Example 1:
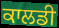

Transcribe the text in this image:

ਕਾਲਡੀ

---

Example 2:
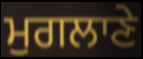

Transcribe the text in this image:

ਮੁਗਲਾਣੇ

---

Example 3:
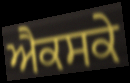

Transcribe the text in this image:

ਐਕਸਕੇ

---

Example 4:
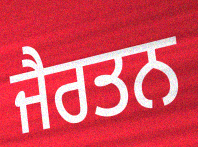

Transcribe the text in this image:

ਜੈਰਤਨ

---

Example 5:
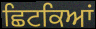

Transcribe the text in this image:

ਛਿਟਕਿਆਂ